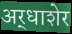
अर्धाशेर